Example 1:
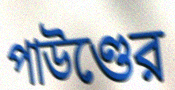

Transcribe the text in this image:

পাউণ্ডের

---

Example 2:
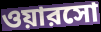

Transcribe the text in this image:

ওয়ারসো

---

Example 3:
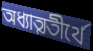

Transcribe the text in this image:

অধ্যাত্মতীর্থে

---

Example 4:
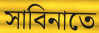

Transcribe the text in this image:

সাবিনাতে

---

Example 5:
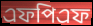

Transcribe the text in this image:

এফপিএফ